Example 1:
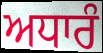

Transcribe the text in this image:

ਅਧਾਰੰ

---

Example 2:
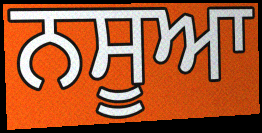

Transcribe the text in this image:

ਨਸੂਆ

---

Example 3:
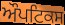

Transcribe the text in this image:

ਔਪਟਿਕਸ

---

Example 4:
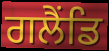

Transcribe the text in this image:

ਗਲੈਂਡਿ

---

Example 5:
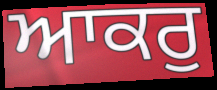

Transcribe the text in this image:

ਆਕਰੁ